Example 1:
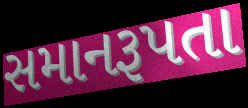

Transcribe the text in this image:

સમાનરૂપતા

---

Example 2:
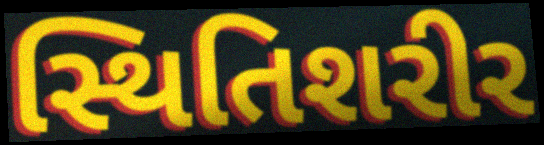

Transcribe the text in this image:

સ્થિતિશરીર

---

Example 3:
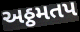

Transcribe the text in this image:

અઠ્ઠમતપ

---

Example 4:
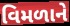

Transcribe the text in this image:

વિમળાને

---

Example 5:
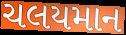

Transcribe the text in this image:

ચલયમાન